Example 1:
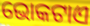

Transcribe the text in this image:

ଭୋକଟାଏ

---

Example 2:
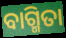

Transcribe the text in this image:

ବାଗ୍ମିତା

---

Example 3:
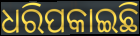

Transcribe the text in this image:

ଧରିପକାଇଛି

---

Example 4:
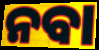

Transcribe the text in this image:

ନବା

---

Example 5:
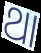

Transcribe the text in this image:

ଥା